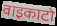
वाइकाटो